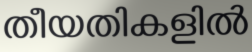
തീയതികളിൽ